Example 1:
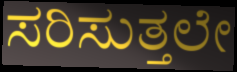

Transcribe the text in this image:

ಸರಿಸುತ್ತಲೇ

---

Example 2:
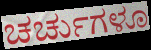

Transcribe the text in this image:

ಚರ್ಚುಗಳೂ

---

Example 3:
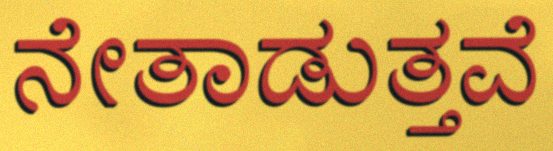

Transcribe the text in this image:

ನೇತಾಡುತ್ತವೆ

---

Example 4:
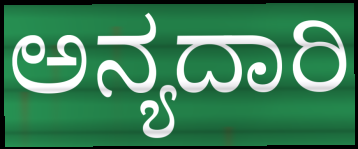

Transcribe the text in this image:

ಅನ್ಯದಾರಿ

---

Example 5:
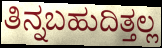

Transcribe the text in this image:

ತಿನ್ನಬಹುದಿತ್ತಲ್ಲ